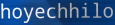
hoyechhilo